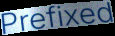
Prefixed